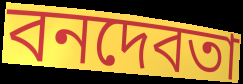
বনদেবতা